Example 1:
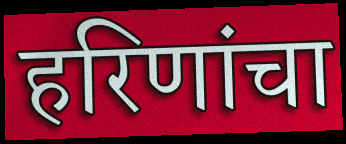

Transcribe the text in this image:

हरिणांचा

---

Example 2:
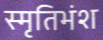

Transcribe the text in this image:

स्मृतिभंश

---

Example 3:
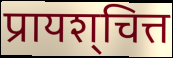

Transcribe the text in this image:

प्रायश्चित्त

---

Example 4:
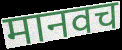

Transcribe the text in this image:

मानवच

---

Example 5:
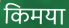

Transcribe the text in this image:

किमया